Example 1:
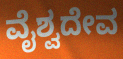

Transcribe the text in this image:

ವೈಶ್ವದೇವ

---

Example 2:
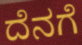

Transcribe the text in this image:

ದೆನಗೆ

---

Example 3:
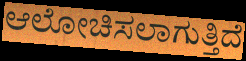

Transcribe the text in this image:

ಆಲೋಚಿಸಲಾಗುತ್ತಿದೆ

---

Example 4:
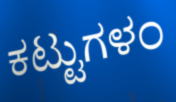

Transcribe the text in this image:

ಕಟ್ಟುಗಳಂ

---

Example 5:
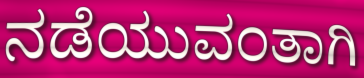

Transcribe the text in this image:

ನಡೆಯುವಂತಾಗಿ